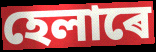
হেলাৰে